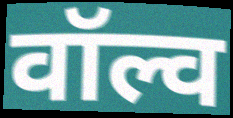
वॉल्व